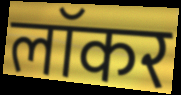
लॉकर